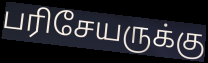
பரிசேயருக்கு